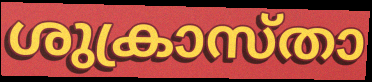
ശുക്രാസ്താ